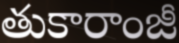
తుకారాంజీ